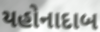
યહોનાદાબ